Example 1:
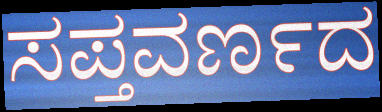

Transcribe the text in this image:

ಸಪ್ತವರ್ಣದ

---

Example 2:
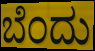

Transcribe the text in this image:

ಬೆಂದು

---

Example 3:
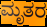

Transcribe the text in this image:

ಮೃತರ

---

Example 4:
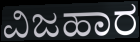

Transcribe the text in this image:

ವಿಜಹಾರ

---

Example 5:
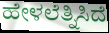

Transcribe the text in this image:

ಹೇಳಲೆತ್ನಿಸಿದೆ